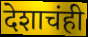
देशाचंही